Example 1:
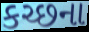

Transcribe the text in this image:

કચ્છના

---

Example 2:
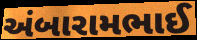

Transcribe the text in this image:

અંબારામભાઈ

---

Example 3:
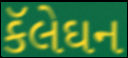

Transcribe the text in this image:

કૅલેઘન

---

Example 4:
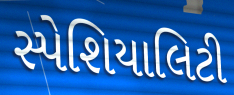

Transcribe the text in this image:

સ્પેશિયાલિટી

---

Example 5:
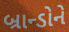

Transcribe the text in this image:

બ્રાન્ડોને